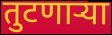
तुटणार्‍या